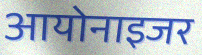
आयोनाइजर